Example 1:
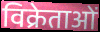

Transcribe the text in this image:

विक्रेताओं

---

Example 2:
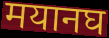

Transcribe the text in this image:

मयानघ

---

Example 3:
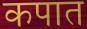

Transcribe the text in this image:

कपात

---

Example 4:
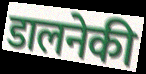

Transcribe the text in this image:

डालनेकी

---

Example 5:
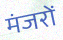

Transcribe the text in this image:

मंजरों